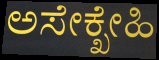
ಅಸೇಕ್ಖೇಹಿ